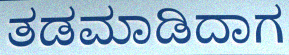
ತಡಮಾಡಿದಾಗ